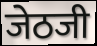
जेठजी